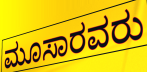
ಮೂಸಾರವರು